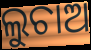
ଲୁଚାଅ